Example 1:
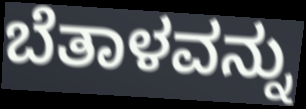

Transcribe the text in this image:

ಬೆತಾಳವನ್ನು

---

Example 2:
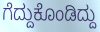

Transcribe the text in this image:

ಗೆದ್ದುಕೊಂಡಿದ್ದು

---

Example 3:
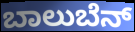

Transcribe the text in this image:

ಬಾಲುಬೆನ್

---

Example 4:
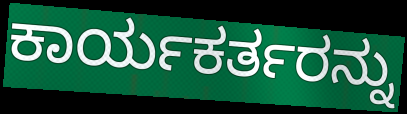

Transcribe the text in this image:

ಕಾರ್ಯಕರ್ತರನ್ನು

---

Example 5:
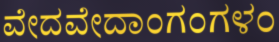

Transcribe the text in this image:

ವೇದವೇದಾಂಗಂಗಳಂ